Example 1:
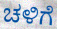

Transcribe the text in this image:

ಚಳಿಗೆ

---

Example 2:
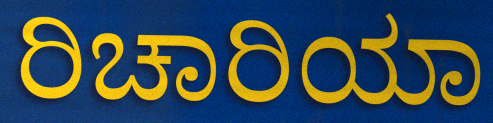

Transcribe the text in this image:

ರಿಚಾರಿಯಾ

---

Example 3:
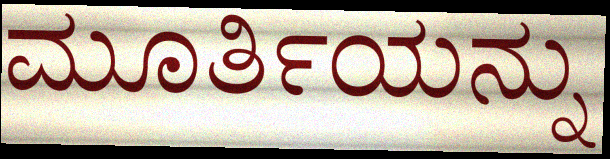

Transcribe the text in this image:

ಮೂರ್ತಿಯನ್ನು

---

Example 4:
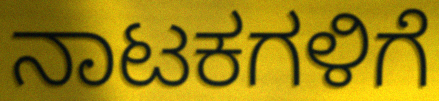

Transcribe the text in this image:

ನಾಟಕಗಳಿಗೆ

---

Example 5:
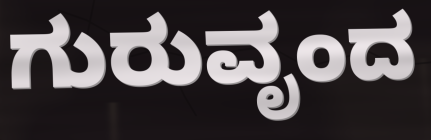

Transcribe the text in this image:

ಗುರುವೃಂದ